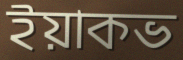
ইয়াকভ